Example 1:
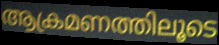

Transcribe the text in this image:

ആക്രമണത്തിലൂടെ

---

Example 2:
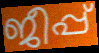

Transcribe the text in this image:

ജീപ്പ്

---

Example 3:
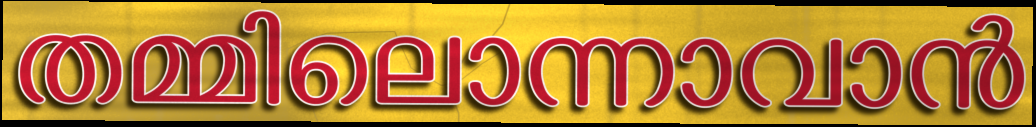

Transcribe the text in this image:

തമ്മിലൊന്നാവാൻ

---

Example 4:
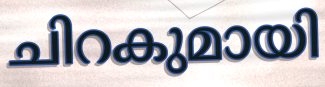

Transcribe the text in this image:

ചിറകുമായി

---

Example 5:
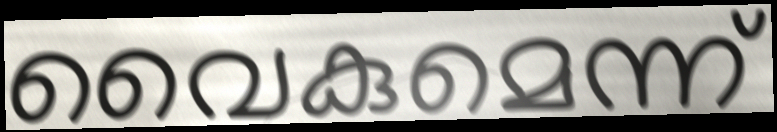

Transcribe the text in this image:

വൈകുമെന്ന്